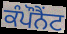
ਕੰਪੌਨੈਂਟ